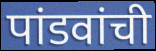
पांडवांची